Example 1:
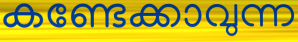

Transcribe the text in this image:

കണ്ടേക്കാവുന്ന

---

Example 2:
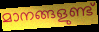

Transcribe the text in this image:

മാനങ്ങളുണ്ട്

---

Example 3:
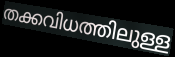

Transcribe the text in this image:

തക്കവിധത്തിലുള്ള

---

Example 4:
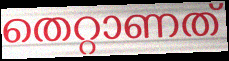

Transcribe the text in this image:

തെറ്റാണത്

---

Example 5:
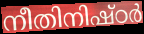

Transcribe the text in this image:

നീതിനിഷ്ഠർ